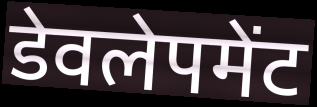
डेवलेपमेंट